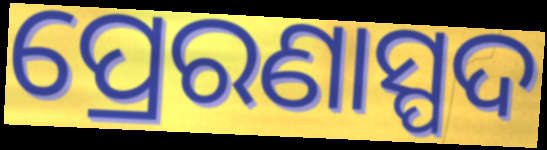
ପ୍ରେରଣାସ୍ପଦ